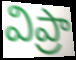
విప్రా